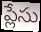
ప్లేసు